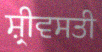
ਸ਼੍ਰੀਵਸਤੀ